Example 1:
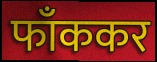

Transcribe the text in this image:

फाँककर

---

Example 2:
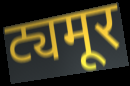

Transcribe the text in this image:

ट्यमूर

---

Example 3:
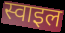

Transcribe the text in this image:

स्वाइल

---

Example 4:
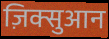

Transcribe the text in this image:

ज़िक्सुआन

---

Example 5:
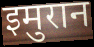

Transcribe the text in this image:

इमुरान